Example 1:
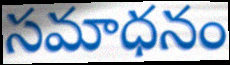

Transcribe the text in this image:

సమాధనం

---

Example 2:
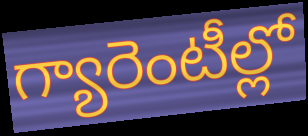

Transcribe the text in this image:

గ్యారెంటీల్లో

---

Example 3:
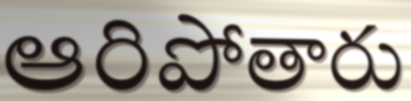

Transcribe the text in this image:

ఆరిపోతారు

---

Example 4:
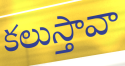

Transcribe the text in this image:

కలుస్తావా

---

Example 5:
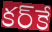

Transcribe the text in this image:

కర్‌కే